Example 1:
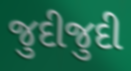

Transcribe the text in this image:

જુદીજુદી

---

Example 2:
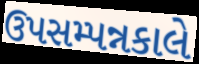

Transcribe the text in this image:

ઉપસમ્પન્નકાલે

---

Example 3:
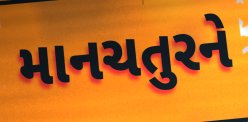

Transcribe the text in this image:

માનચતુરને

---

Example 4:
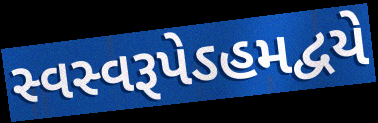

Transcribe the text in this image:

સ્વસ્વરૂપેઽહમદ્વયે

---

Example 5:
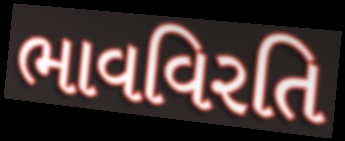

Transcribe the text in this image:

ભાવવિરતિ